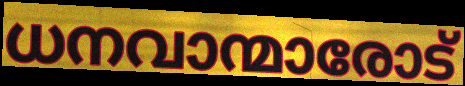
ധനവാന്മാരോട്